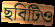
ছবিটিও